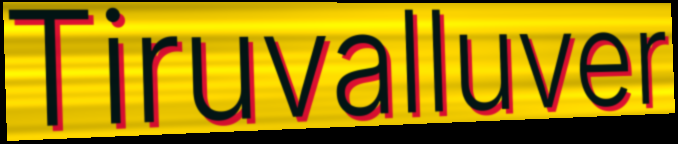
Tiruvalluver